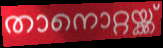
താനൊറ്റയ്ക്ക്